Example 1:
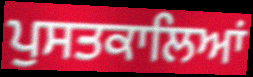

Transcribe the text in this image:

ਪੁਸਤਕਾਲਿਆਂ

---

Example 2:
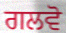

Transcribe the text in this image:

ਗਲਵੋ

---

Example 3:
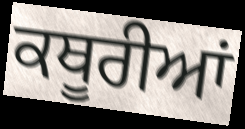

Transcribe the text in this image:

ਕਥੂਰੀਆਂ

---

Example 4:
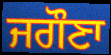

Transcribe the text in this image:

ਜਗੌਣਾ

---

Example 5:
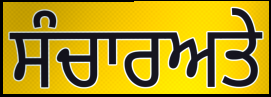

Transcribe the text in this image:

ਸੰਚਾਰਅਤੇ